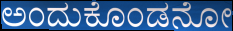
ಅಂದುಕೊಂಡನೋ